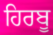
ਹਿਰਬੂ